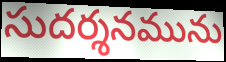
సుదర్శనమును